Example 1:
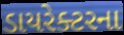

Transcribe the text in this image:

ડાયરેક્ટરના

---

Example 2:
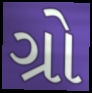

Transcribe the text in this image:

ગ્રો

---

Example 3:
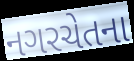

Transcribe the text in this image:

નગરચેતના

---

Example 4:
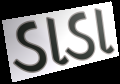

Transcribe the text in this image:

ડાડા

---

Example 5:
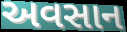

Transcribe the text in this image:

અવસાન